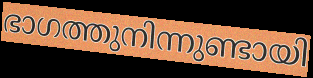
ഭാഗത്തുനിന്നുണ്ടായി